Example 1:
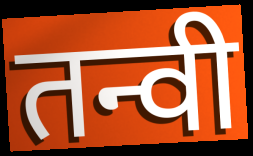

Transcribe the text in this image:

तन्वी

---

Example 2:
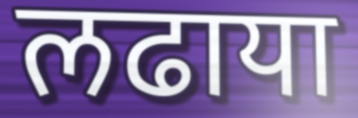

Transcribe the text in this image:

लढाया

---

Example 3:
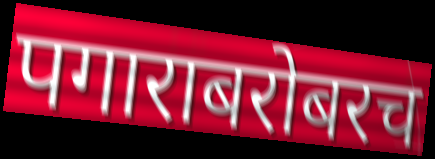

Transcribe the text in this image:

पगाराबरोबरच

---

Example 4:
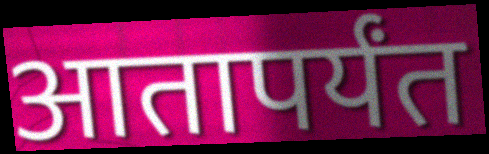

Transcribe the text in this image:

आतापर्यंत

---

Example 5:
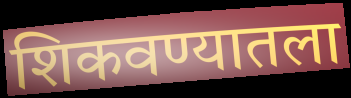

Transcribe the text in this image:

शिकवण्यातला